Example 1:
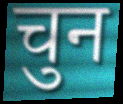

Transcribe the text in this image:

चुन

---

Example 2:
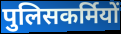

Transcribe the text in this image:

पुलिसकर्मियों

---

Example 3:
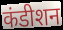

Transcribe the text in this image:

कंडीशन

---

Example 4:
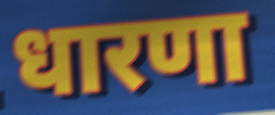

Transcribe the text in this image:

धारणा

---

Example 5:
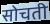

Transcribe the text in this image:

सोचती